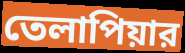
তেলাপিয়ার